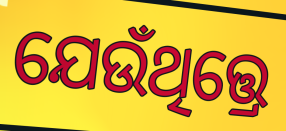
ଯେଉଁଥିତ୍ତ୍ରେ